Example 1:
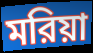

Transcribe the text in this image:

মরিয়া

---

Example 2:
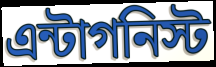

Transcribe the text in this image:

এন্টাগনিস্ট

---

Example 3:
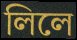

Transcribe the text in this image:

লিলে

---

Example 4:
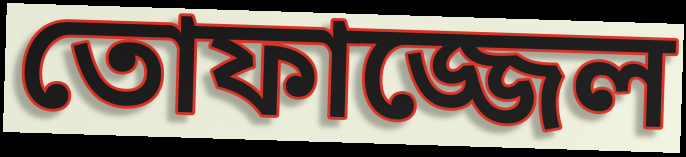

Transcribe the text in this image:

তোফাজ্জেল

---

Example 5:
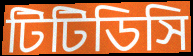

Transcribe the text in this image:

টিটিডিসি